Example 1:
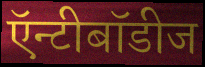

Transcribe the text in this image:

ऍन्टीबॉडीज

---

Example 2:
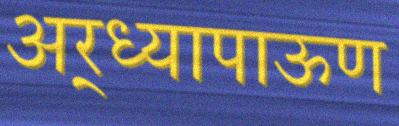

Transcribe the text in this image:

अर्ध्यापाऊण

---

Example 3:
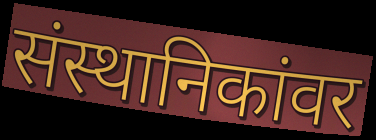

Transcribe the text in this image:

संस्थानिकांवर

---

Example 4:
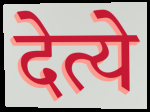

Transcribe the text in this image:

देत्ये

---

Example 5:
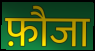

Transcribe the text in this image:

फ़ौजा